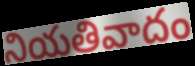
నియతివాదం